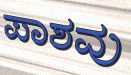
ಪಾಶವು